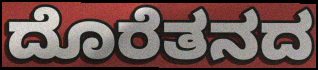
ದೊರೆತನದ